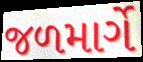
જળમાર્ગે